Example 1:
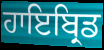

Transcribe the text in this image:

ਹਾਇਬ੍ਰਿਡ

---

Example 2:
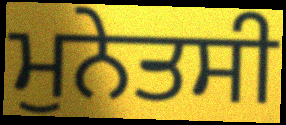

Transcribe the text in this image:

ਮੁਨੇਤਸੀ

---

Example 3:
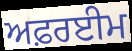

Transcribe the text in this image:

ਅਫ਼ਰਈਮ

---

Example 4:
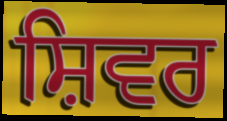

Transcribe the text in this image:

ਸ਼ਿਵਰ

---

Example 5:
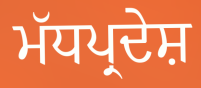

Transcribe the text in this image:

ਮੱਧਪ੍ਰਦੇਸ਼